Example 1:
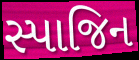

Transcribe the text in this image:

સ્પાજિન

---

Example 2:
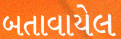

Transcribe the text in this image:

બતાવાયેલ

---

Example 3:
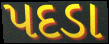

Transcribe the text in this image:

પદડા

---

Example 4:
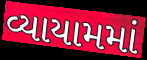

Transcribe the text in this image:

વ્યાયામમાં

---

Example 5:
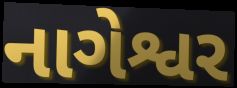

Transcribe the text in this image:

નાગેશ્વર